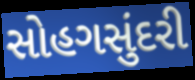
સોહગસુંદરી